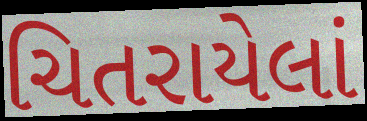
ચિતરાયેલાં